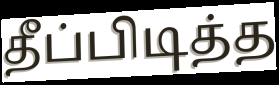
தீப்பிடித்த